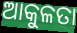
ଆକୁଳତା